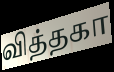
வித்தகா